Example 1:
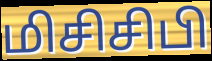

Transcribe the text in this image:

மிசிசிபி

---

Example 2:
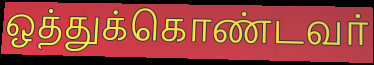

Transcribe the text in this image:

ஒத்துக்கொண்டவர்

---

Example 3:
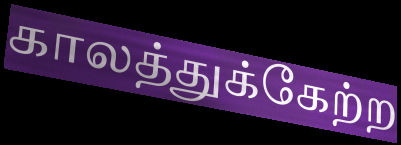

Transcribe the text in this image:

காலத்துக்கேற்ற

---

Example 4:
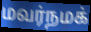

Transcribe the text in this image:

மவர்நமக்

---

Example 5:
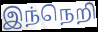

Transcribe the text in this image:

இந்நெறி